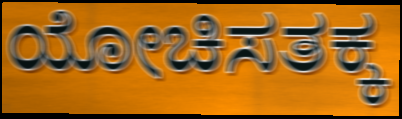
ಯೋಚಿಸತಕ್ಕ